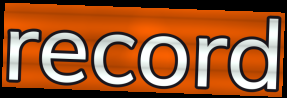
record